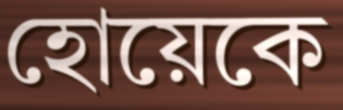
হোয়েকে